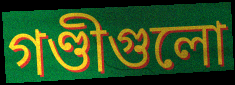
গণ্ডীগুলো